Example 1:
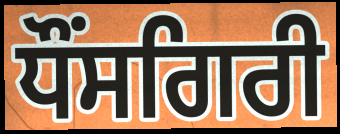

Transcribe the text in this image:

ਧੌਂਸਗਿਰੀ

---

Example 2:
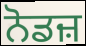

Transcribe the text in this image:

ਨੋਡਜ਼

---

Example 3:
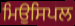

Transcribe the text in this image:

ਮਿਉਸਿਪਲ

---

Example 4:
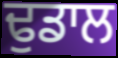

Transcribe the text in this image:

ਢੁਡਾਲ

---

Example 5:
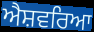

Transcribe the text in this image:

ਐਸ਼ਵਰਿਆ